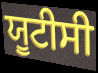
ਯੂਟੀਸੀ